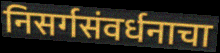
निसर्गसंवर्धनाचा